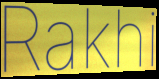
Rakhi